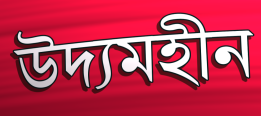
উদ্যমহীন